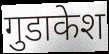
गुडाकेश